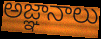
అజ్ఞానాలు